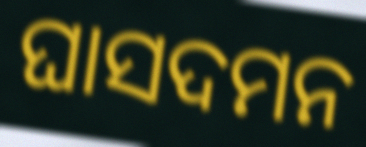
ଘାସଦମନ